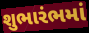
શુભારંભમાં